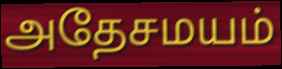
அதேசமயம்